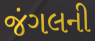
જંગલની